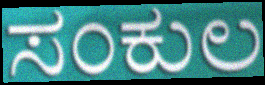
ಸಂಕುಲ